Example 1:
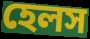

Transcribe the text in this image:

হেলস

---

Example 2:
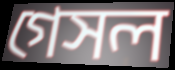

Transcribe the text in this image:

গেসল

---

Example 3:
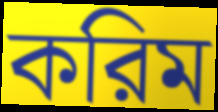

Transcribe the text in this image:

করিম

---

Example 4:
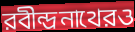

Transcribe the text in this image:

রবীন্দ্রনাথেরও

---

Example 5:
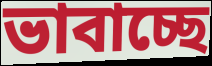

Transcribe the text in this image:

ভাবাচ্ছে